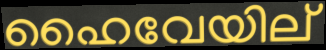
ഹൈവേയില്